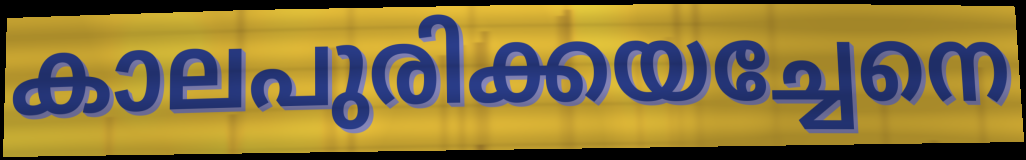
കാലപുരിക്കയച്ചേനെ